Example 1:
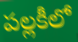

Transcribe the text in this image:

పల్లకీలో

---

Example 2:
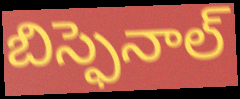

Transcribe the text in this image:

బిస్ఫెనాల్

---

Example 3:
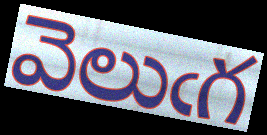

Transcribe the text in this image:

వెలుఁగ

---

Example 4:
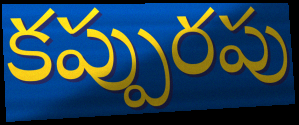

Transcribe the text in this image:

కప్పురపు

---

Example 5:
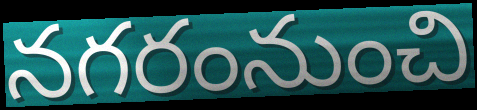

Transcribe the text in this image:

నగరంనుంచి